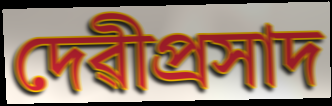
দেৱীপ্ৰসাদ